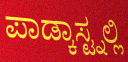
ಪಾಡ್ಕಾಸ್ಟ್ನಲ್ಲಿ